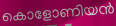
കൊളോണിയൻ